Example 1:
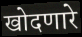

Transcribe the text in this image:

खोदणारे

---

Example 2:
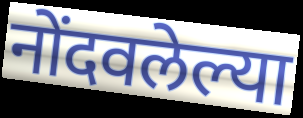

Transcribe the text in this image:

नोंदवलेल्या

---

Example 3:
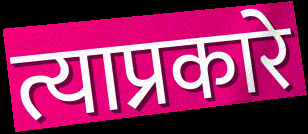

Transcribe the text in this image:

त्याप्रकारे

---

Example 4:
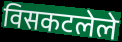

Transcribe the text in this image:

विसकटलेले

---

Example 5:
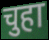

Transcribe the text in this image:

चुहा